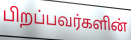
பிறப்பவர்களின்